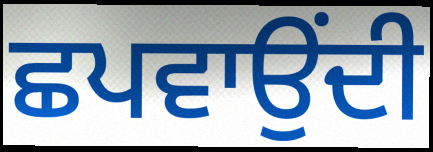
ਛਪਵਾਉਂਦੀ